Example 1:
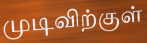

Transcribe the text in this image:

முடிவிற்குள்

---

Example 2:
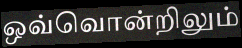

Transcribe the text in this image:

ஒவ்வொன்றிலும்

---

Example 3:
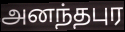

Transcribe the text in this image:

அனந்தபுர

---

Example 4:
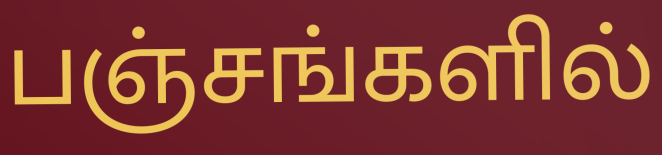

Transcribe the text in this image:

பஞ்சங்களில்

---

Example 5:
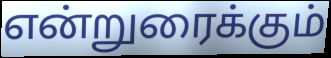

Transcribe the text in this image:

என்றுரைக்கும்